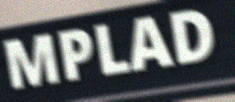
MPLAD